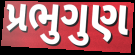
પ્રભુગુણ